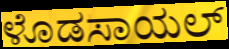
ಳೊಡಸಾಯಲ್